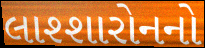
લાશ્શારોનનો